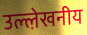
उल्ल़ेखनीय